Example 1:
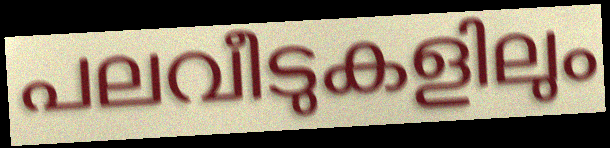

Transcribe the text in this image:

പലവീടുകളിലും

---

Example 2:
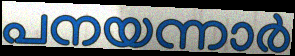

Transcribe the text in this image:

പനയന്നാർ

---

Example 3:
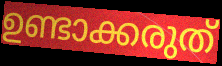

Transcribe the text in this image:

ഉണ്ടാക്കരുത്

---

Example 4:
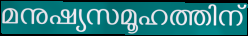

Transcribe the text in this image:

മനുഷ്യസമൂഹത്തിന്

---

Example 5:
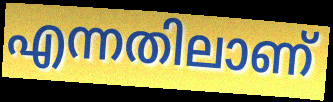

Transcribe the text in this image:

എന്നതിലാണ്